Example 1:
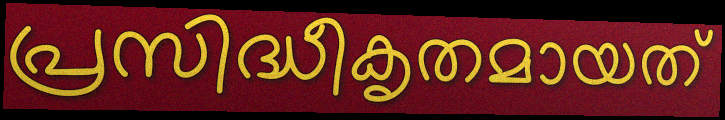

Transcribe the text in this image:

പ്രസിദ്ധീകൃതമായത്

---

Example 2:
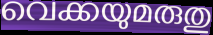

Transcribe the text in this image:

വെക്കയുമരുതു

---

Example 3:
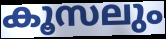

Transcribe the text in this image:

കൂസലും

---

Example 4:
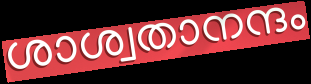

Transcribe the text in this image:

ശാശ്വതാനന്ദം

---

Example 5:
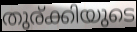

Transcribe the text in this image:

തുര്ക്കിയുടെ